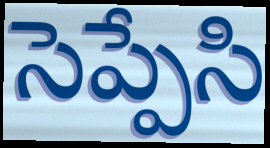
సెప్పేసి